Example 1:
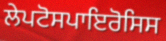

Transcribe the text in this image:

ਲੇਪਟੋਸਪਾਇਰੋਸਿਸ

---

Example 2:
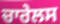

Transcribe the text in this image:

ਚਾਰੇਲਸ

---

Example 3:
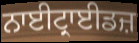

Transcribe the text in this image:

ਨਾਈਟ੍ਰਾਈਡਜ਼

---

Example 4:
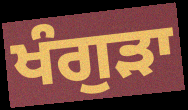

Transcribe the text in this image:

ਖੰਗੁੜਾ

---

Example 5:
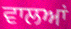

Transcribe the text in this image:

ਵਾਲਆਂ